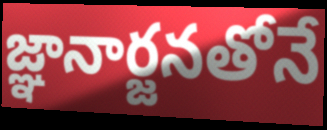
జ్ఞానార్జనతోనే